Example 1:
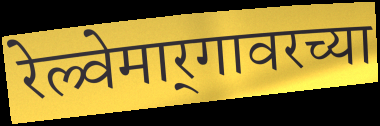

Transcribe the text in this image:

रेल्वेमार्गावरच्या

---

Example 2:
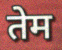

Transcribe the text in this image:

तेम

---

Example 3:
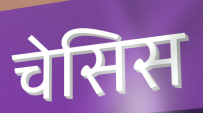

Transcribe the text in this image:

चेसिस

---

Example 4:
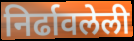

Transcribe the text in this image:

निर्ढावलेली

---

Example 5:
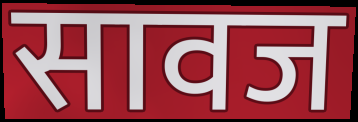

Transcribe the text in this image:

सावज